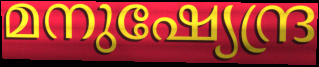
മനുഷ്യേന്ദ്ര